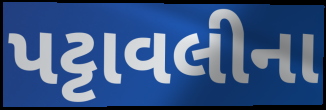
પટ્ટાવલીના